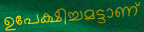
ഉപേക്ഷിച്ചമട്ടാണ്